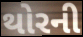
થોરની